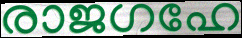
രാജഗഹേ